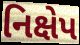
નિક્ષેપ